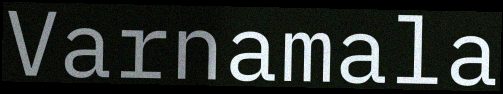
Varnamala